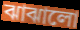
ঝাঝালো